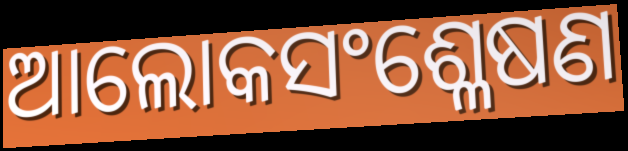
ଆଲୋକସଂଶ୍ଳେଷଣ